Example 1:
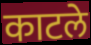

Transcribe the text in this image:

काटले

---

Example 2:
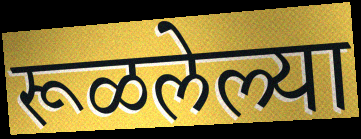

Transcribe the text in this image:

रूळलेल्या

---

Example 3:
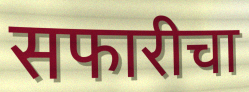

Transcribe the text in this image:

सफारीचा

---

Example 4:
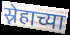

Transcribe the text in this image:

स्नेहाच्या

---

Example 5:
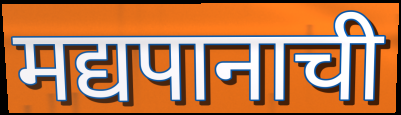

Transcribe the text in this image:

मद्यपानाची